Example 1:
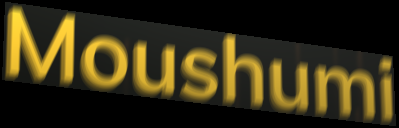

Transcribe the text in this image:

Moushumi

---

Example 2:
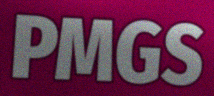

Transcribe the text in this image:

PMGS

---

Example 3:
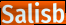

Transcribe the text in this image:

Salisb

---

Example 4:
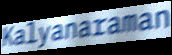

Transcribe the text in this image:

Kalyanaraman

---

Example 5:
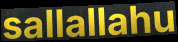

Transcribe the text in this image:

sallallahu